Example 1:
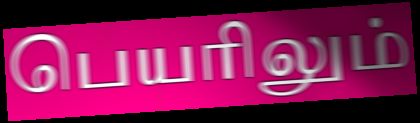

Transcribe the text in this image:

பெயரிலும்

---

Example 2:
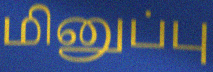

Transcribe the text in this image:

மினுப்பு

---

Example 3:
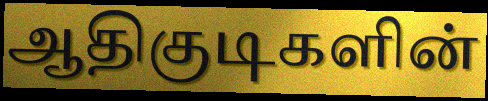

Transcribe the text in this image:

ஆதிகுடிகளின்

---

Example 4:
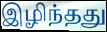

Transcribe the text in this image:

இழிந்தது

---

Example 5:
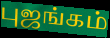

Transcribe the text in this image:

புஜங்கம்